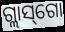
ଗ୍ଲାସ୍‌ଗୋ